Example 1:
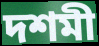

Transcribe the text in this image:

দশমী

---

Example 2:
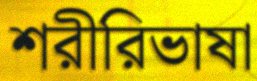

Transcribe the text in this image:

শরীরিভাষা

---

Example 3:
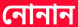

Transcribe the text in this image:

নোনান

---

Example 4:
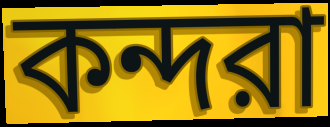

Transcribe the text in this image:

কন্দরা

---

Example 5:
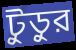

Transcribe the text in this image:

টুডুর